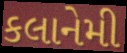
કલાનેમી